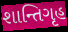
શાન્તિગૃહ